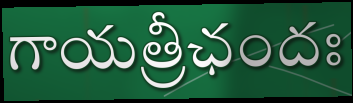
గాయత్రీఛందః